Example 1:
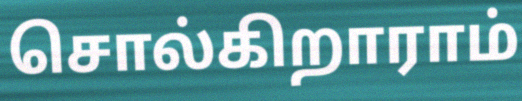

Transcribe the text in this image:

சொல்கிறாராம்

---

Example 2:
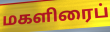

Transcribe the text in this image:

மகளிரைப்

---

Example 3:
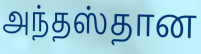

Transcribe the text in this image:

அந்தஸ்தான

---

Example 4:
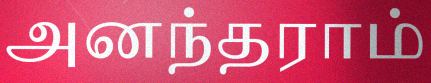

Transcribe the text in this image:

அனந்தராம்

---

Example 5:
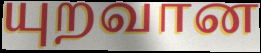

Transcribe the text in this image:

யுறவான